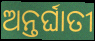
ଅନ୍ତର୍ଘାତୀ